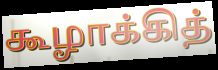
கூழாக்கித்